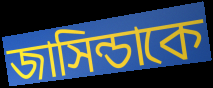
জাসিন্ডাকে